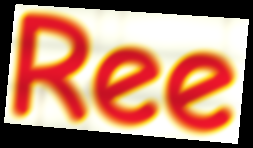
Ree